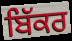
ਬਿੱਕਰ